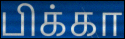
பிக்கா